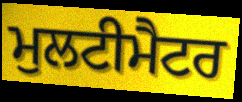
ਮੁਲਟੀਮੈਟਰ